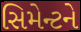
સિમેન્ટને